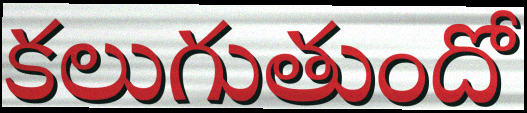
కలుగుతుందో